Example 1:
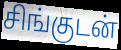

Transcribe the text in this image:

சிங்குடன்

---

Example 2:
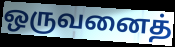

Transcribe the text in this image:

ஒருவனைத்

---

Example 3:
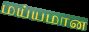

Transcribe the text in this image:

மய்யமான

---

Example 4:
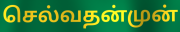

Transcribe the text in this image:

செல்வதன்முன்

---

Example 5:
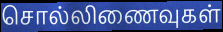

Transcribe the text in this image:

சொல்லிணைவுகள்